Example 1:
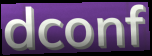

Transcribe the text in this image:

dconf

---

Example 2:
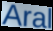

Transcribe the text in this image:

Aral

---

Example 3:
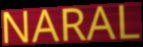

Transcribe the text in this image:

NARAL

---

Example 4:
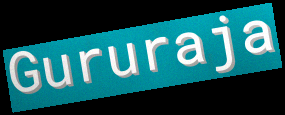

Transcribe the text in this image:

Gururaja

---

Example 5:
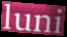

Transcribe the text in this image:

luni